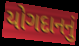
યોગદાનનું